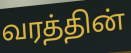
வரத்தின்